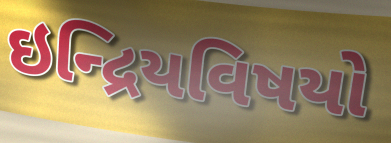
ઇન્દ્રિયવિષયો